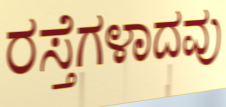
ರಸ್ತೆಗಳಾದವು